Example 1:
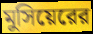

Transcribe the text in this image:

মুসিয়েরের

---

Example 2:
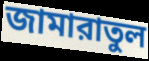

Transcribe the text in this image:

জামারাতুল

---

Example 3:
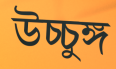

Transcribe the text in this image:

উচ্চুঙ্গ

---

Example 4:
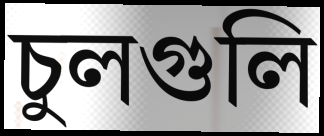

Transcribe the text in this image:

চুলগুলি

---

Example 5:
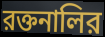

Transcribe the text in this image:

রক্তনালির